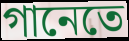
গানেতে